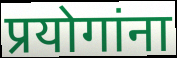
प्रयोगांना